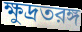
ক্ষুদ্রতরঙ্গ